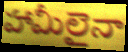
హామీలైనా